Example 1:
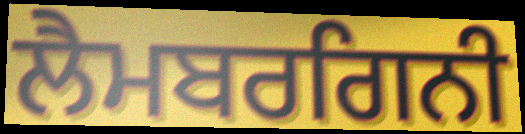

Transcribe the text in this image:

ਲੈਮਬਰਗਿਨੀ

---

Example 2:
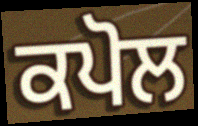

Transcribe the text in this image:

ਕਪੋਲ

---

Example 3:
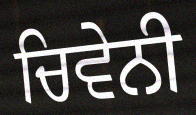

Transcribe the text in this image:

ਚਿਵੇਨੀ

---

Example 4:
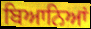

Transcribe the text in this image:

ਬਿਆਨਿਆਂ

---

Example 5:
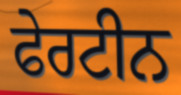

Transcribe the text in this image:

ਫੇਰਟੀਨ